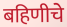
बहिणीचे